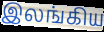
இலங்கிய